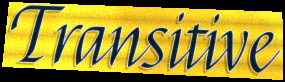
Transitive